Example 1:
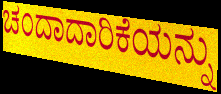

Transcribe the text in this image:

ಚಂದಾದಾರಿಕೆಯನ್ನು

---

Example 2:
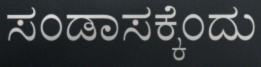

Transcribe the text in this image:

ಸಂಡಾಸಕ್ಕೆಂದು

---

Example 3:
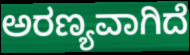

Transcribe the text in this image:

ಅರಣ್ಯವಾಗಿದೆ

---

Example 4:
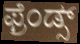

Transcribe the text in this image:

ಫ್ರೆಂಡ್ಸ್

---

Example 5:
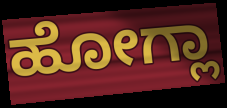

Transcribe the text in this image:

ಹೋಗ್ಲಾ